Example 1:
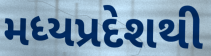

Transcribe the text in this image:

મધ્યપ્રદેશથી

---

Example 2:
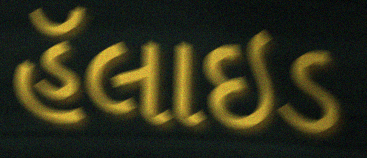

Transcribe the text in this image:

હૅલાઇડ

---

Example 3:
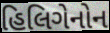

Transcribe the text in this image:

હિલિગેનોન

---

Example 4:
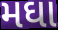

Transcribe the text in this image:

મઘા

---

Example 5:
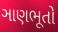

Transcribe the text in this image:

ઞાણભૂતો